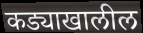
कड्याखालील